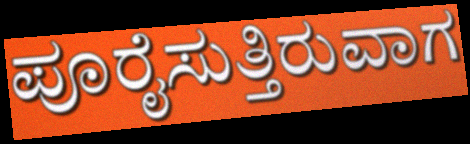
ಪೂರೈಸುತ್ತಿರುವಾಗ